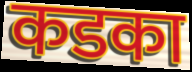
कडका